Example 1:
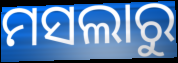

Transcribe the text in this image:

ମସଲାରୁ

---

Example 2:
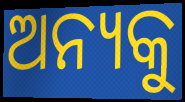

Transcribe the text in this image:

ଅନ୍ୟକୁ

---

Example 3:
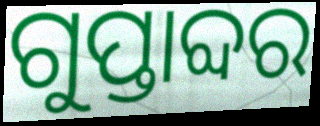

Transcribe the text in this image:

ଗୁପ୍ତାବ୍ଦର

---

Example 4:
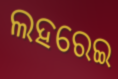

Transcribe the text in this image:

ଲହରେଇ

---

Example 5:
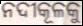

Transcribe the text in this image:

ନଦୀକୂଳକୁ